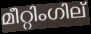
മീറ്റിംഗില്